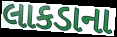
લાકડાના